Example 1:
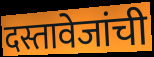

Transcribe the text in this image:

दस्तावेजांची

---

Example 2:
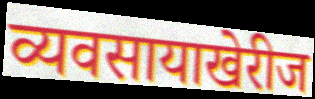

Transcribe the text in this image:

व्यवसायाखेरीज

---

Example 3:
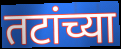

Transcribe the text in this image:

तटांच्या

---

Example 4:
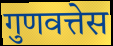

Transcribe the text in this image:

गुणवत्तेस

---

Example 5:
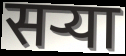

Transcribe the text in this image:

सऱ्या